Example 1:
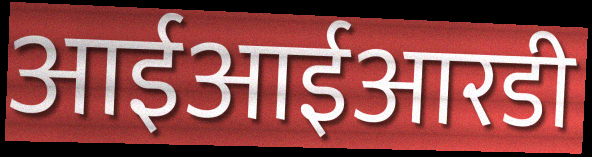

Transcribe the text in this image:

आईआईआरडी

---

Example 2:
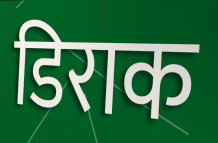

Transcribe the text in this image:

डिराक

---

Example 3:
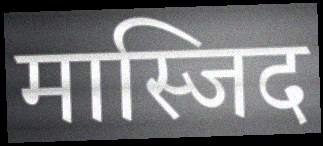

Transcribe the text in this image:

मास्जिद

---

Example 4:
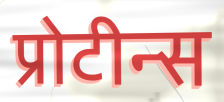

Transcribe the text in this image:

प्रोटीन्स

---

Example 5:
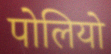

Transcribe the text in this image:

पोलियो